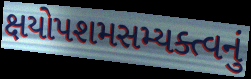
ક્ષયોપશમસમ્યક્ત્વનું